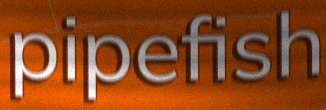
pipefish